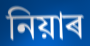
নিয়াৰ